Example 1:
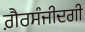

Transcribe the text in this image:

ਗ਼ੈਰਸੰਜੀਦਗੀ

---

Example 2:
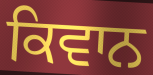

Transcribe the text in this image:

ਕਿਵਾਨ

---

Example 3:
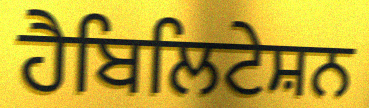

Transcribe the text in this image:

ਹੈਬਿਲਿਟੇਸ਼ਨ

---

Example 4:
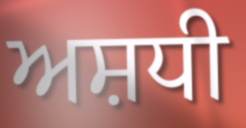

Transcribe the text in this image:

ਅਸ਼ਧੀ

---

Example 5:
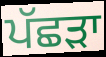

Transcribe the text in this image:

ਪੱਛੜਾ